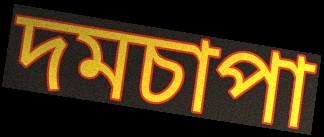
দমচাপা